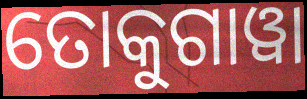
ତୋକୁଗାୱା